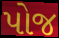
પોજ